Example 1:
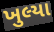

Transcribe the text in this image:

ખુલ્યા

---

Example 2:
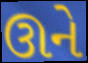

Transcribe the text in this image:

ઊને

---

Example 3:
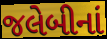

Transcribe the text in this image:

જલેબીનાં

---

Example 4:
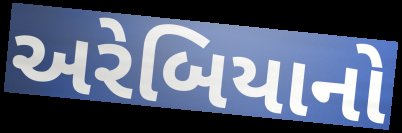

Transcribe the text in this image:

અરેબિયાનો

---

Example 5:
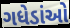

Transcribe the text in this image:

ગધેડાંઓ